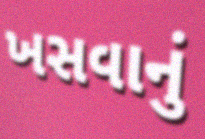
ખસવાનું